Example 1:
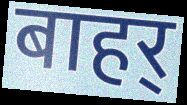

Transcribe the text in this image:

बाहर्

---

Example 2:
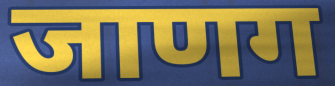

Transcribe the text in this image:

जाणग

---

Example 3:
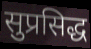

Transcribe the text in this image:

सुप्रसिद्ध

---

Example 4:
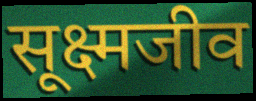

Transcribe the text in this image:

सूक्ष्मजीव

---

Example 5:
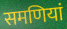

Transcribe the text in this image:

समणियां